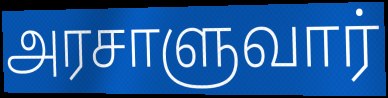
அரசாளுவார்